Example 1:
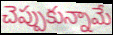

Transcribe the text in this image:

చెప్పుకున్నామే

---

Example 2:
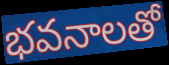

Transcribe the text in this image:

భవనాలతో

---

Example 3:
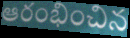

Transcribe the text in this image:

ఆరంభించిన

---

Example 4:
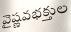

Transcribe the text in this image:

వైష్ణవభక్తుల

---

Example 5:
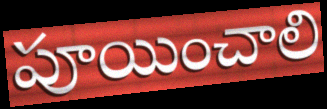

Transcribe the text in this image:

పూయించాలి